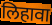
लिहावा